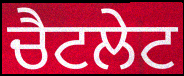
ਚੈਟਲੇਟ